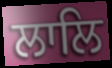
ਲਾਲਿ